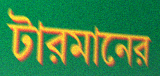
টারমানের